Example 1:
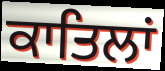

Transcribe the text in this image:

ਕਾਤਿਲਾਂ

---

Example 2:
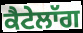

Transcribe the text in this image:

ਕੈਟੇਲਾੱਗ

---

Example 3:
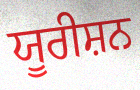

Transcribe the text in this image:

ਯੂਰੀਸ਼ਨ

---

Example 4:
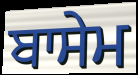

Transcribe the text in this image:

ਬਾਸੇਮ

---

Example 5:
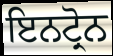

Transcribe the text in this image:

ਇਨਟ੍ਰੋਨ